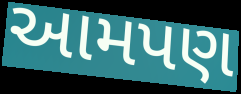
આમપણ